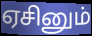
ஏசினும்